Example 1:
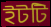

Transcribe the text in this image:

ইটটি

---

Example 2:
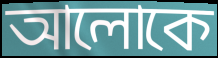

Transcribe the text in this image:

আলোকে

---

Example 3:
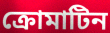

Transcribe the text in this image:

ক্রোমাটিন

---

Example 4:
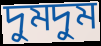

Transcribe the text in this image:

দুমদুম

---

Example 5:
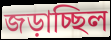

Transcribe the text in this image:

জড়াচ্ছিল